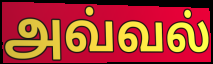
அவ்வல்